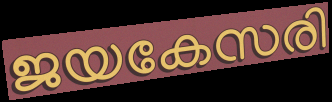
ജയകേസരി